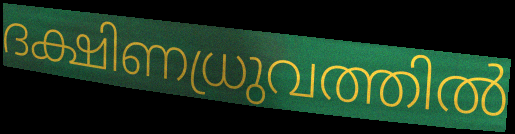
ദക്ഷിണധ്രുവത്തിൽ